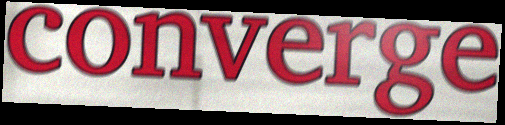
converge